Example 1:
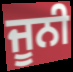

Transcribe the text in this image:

ਜੂਨੀ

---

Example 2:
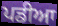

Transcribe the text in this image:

ਪਡੀਆ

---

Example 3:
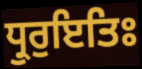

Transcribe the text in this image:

ਧ੍ਰੁਰੁਇਤਿਃ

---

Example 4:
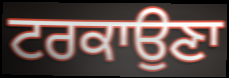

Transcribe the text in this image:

ਟਰਕਾਉਣਾ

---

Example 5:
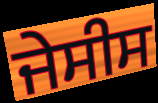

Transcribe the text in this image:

ਜੇਸੀਸ